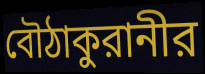
বৌঠাকুরানীর